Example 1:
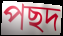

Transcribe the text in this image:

পছদ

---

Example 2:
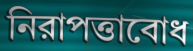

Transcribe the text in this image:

নিরাপত্তাবোধ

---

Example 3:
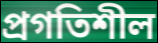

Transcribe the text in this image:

প্রগতিশীল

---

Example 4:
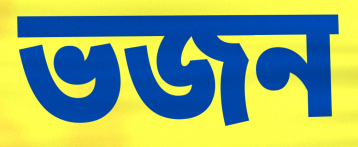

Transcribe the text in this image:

ভজন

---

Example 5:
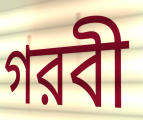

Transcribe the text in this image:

গরবী